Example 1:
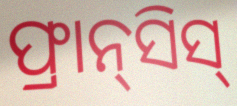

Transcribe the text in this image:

ଫ୍ରାନ୍‌ସିସ୍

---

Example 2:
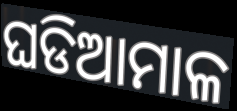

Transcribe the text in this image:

ଘଡିଆମାଳ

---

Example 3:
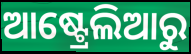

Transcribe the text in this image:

ଆଷ୍ଟ୍ରେଲିଆରୁ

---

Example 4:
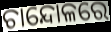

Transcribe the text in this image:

ଚାନ୍ଦୋଳରେ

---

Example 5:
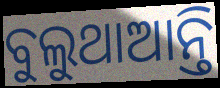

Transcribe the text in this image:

ବୁଲୁଥାଆନ୍ତି